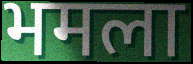
भमला